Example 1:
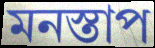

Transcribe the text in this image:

মনস্তাপ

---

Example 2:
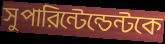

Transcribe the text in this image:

সুপারিন্টেন্ডেন্টকে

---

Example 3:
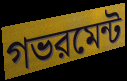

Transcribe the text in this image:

গভরমেন্ট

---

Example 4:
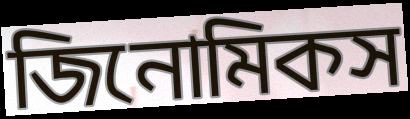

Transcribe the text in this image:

জিনোমিকস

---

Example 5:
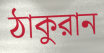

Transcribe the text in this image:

ঠাকুরান